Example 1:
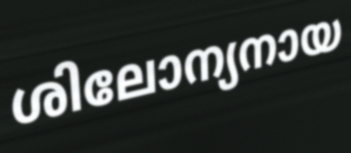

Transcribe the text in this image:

ശിലോന്യനായ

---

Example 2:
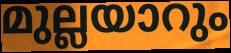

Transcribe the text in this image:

മുല്ലയാറും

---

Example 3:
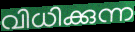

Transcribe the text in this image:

വിധിക്കുന്ന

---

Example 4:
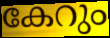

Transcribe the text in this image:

കേറും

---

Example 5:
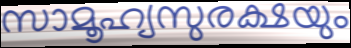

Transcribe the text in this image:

സാമൂഹ്യസുരക്ഷയും